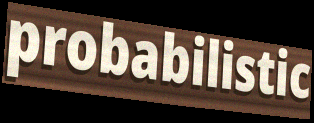
probabilistic